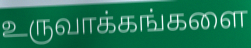
உருவாக்கங்களை